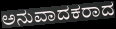
ಅನುವಾದಕರಾದ